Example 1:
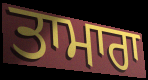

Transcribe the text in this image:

ਤਾਮਾਰਾ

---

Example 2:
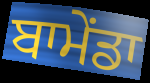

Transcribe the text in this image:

ਬਾਮੇਂਡਾ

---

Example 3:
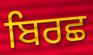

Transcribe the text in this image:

ਬਿਰਛ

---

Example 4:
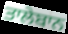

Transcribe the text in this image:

ਤਾਲੇਬਾਨ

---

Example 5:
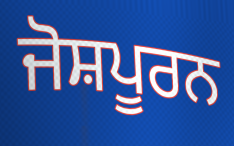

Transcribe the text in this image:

ਜੋਸ਼ਪੂਰਨ